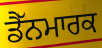
ਡੈੱਨਮਾਰਕ